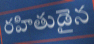
రహితుడైన